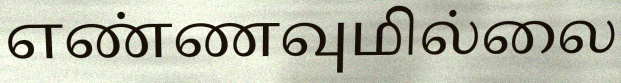
எண்ணவுமில்லை